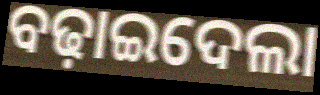
ବଢ଼ାଇଦେଲା